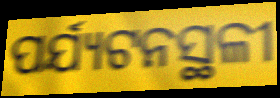
ପର୍ଯ୍ୟଟନସ୍ଥଳୀ